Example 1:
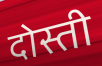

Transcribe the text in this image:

दोस्ती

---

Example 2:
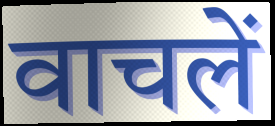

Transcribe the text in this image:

वाचलें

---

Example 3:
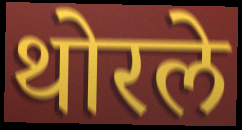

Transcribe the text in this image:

थोरले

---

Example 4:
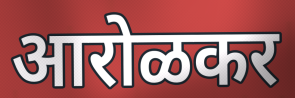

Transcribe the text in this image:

आरोळकर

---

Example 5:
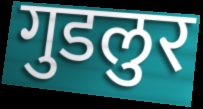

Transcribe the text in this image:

गुडलुर